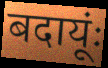
बदायूंः